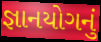
જ્ઞાનયોગનું